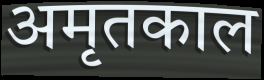
अमृतकाल